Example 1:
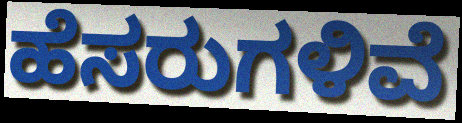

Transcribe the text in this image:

ಹೆಸರುಗಳಿವೆ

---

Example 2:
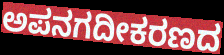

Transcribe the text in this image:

ಅಪನಗದೀಕರಣದ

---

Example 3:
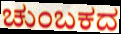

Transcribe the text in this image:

ಚುಂಬಕದ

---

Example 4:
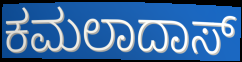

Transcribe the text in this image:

ಕಮಲಾದಾಸ್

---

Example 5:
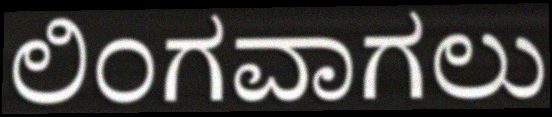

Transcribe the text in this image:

ಲಿಂಗವಾಗಲು